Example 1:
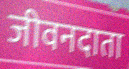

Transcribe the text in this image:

जीवनदाता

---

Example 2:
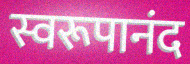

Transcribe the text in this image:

स्‍वरूपानंद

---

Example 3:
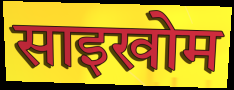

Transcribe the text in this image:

साइखोम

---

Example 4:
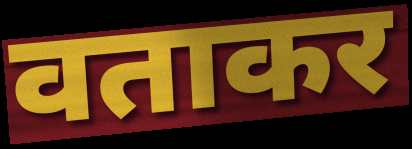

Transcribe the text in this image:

वताकर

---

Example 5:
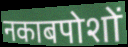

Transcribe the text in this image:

नकाबपोशों